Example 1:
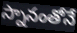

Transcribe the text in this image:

స్నానంతోనే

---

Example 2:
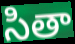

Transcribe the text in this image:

సితా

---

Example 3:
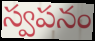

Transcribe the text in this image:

స్వపనం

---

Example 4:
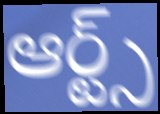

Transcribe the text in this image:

ఆర్ట్స్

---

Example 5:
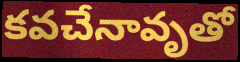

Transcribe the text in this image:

కవచేనావృతో